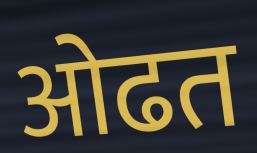
ओढत